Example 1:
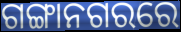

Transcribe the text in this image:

ଗଙ୍ଗାନଗରରେ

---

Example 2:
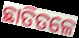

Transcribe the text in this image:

ଛାତିତଳେ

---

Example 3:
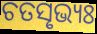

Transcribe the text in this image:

ଚତସୃଭ୍ୟଃ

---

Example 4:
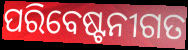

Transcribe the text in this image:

ପରିବେଷ୍ଟନୀଗତ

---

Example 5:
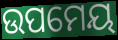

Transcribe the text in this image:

ଉପମେୟ